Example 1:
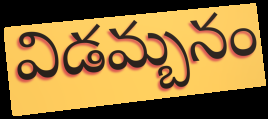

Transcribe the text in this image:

విడమ్బనం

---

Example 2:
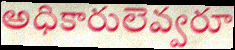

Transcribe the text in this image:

అధికారులెవ్వరూ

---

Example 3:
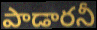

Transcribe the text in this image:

పాడారనీ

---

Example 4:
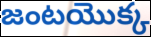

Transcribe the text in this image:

జంటయొక్క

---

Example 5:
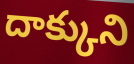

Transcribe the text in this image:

దాక్కుని